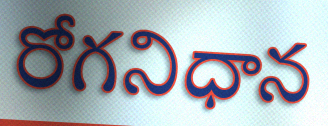
రోగనిధాన